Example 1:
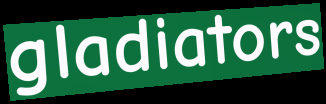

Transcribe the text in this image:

gladiators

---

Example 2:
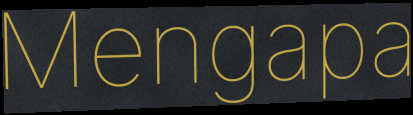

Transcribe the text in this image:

Mengapa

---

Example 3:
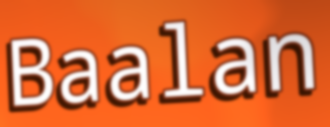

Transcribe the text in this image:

Baalan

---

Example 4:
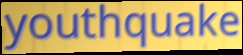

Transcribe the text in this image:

youthquake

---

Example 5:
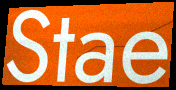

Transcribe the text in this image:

Stae